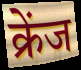
क्रेंज